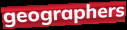
geographers